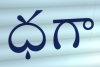
ధగా